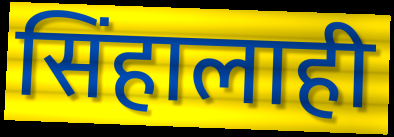
सिंहालाही